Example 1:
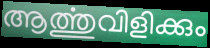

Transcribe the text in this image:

ആൎത്തുവിളിക്കും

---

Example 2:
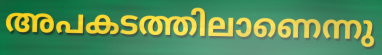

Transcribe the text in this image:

അപകടത്തിലാണെന്നു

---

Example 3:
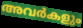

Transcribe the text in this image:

അവർകളും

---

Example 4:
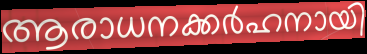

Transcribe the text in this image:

ആരാധനക്കർഹനായി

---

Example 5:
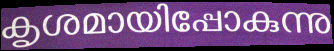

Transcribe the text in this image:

കൃശമായിപ്പോകുന്നു